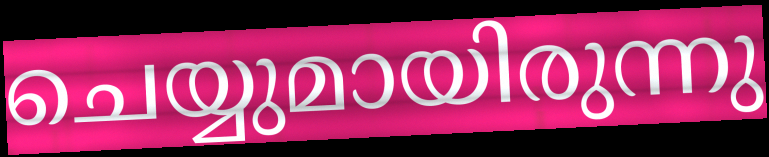
ചെയ്യുമായിരുന്നു